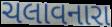
ચલાવનારા